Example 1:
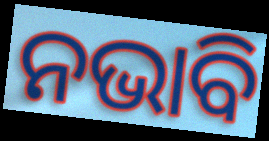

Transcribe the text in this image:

ନଭାବି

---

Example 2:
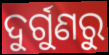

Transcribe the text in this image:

ଦୁର୍ଗୁଣରୁ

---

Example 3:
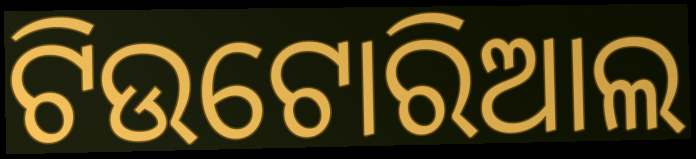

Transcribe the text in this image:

ଟିଉଟୋରିଆଲ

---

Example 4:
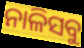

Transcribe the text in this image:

ନାଳିସବୁ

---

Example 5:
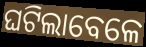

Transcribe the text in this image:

ଘଟିଲାବେଳେ